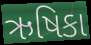
ઋષિકા